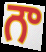
గౌ